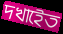
দখাইেত